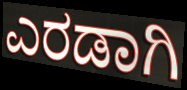
ಎರಡಾಗಿ